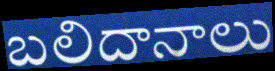
బలిదానాలు